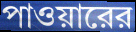
পাওয়ারের